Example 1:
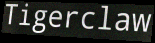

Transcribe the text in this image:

Tigerclaw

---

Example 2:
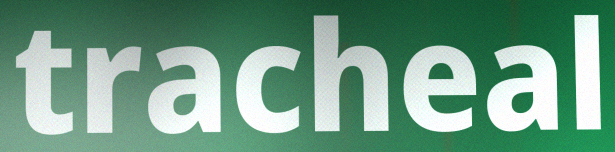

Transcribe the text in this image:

tracheal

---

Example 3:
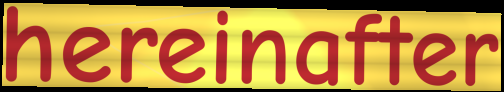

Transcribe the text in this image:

hereinafter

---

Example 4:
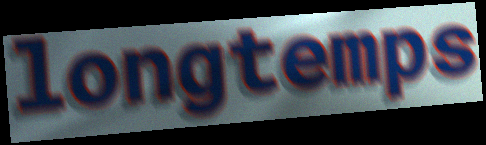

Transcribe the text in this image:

longtemps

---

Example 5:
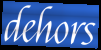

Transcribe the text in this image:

dehors